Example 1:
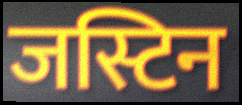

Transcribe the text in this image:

जस्टिन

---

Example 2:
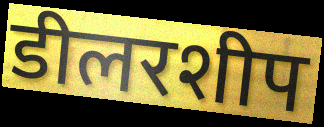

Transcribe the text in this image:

डीलरशीप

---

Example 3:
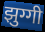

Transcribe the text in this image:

झुग्गी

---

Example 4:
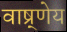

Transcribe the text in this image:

वाष्र्णेय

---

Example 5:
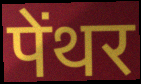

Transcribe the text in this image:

पेंथर